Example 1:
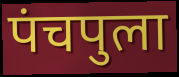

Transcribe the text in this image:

पंचपुला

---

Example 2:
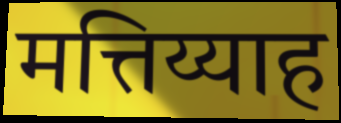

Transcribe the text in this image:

मत्तिय्याह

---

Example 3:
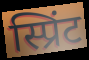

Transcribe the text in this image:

स्प्रिंट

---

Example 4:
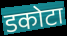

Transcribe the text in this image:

डकोटा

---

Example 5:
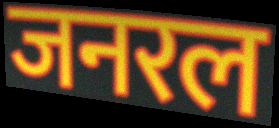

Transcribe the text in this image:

जनरल